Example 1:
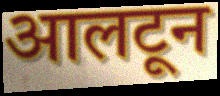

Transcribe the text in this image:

आलटून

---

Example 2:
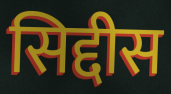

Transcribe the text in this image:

सिद्दीस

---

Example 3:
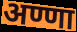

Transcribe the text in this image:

अण्णा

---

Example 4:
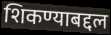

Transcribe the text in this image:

शिकण्याबद्दल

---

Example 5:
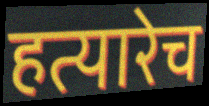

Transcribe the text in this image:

हत्यारेच